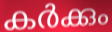
കർക്കും